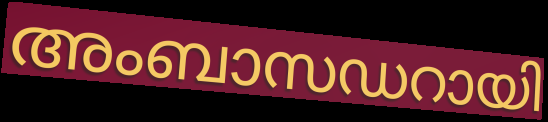
അംബാസഡറായി